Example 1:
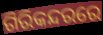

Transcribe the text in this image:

ଗିରିକନ୍ଦରରେ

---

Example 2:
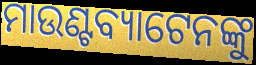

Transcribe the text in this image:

ମାଉଣ୍ଟବ୍ୟାଟେନଙ୍କୁ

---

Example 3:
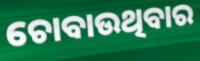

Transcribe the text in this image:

ଚୋବାଉଥିବାର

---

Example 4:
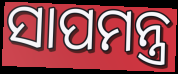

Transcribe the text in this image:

ସାପମନ୍ତ୍ର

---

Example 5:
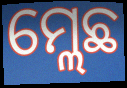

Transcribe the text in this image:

ମ୍ଲେଛ